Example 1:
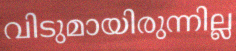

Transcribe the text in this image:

വിടുമായിരുന്നില്ല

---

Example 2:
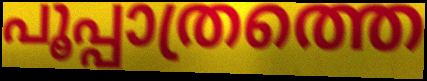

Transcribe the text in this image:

പൂപ്പാത്രത്തെ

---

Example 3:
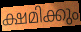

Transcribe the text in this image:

ക്ഷമിക്കും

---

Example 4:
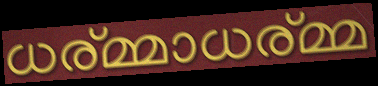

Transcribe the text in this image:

ധര്മ്മാധര്മ്മ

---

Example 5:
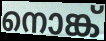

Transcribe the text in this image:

നൊങ്ക്